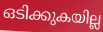
ഒടിക്കുകയില്ല